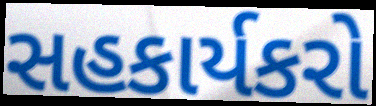
સહકાર્યકરો